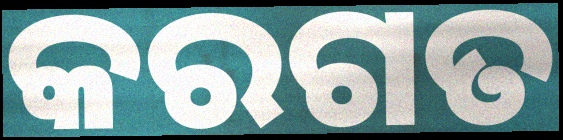
କରଗତ